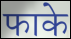
फाके